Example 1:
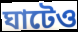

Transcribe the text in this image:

ঘাটেও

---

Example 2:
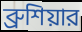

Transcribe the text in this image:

ব্রুশিয়ার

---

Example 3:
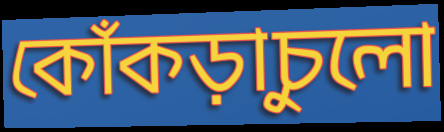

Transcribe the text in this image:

কোঁকড়াচুলো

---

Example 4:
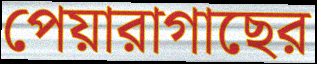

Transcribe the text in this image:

পেয়ারাগাছের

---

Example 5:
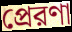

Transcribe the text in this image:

প্রেরণা